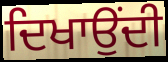
ਦਿਖਾਉਂਦੀ